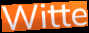
Witte